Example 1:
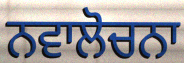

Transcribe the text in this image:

ਨਵਾਲੋਚਨਾ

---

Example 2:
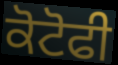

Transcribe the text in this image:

ਕੋਟੋਫੀ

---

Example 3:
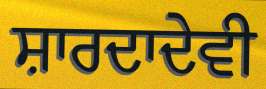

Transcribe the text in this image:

ਸ਼ਾਰਦਾਦੇਵੀ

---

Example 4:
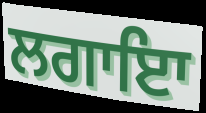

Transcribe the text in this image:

ਲਗਾਇਾ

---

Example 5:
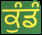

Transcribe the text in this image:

ਕੁੰਡੰ